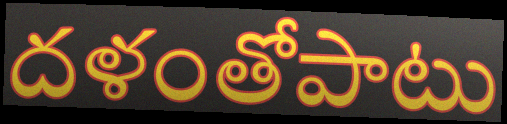
దళంతోపాటు